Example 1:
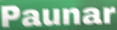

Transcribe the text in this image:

Paunar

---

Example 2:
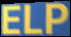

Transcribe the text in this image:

ELP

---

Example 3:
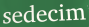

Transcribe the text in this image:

sedecim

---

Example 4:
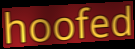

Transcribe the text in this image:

hoofed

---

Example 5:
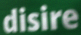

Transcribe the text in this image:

disire